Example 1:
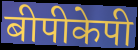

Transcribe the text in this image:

बीपीकेपी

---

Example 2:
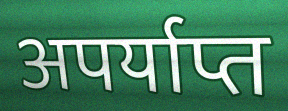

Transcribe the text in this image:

अपर्याप्त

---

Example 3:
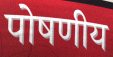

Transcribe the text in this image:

पोषणीय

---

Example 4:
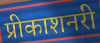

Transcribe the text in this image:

प्रीकाशनरी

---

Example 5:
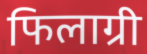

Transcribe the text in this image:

फिलाग्री